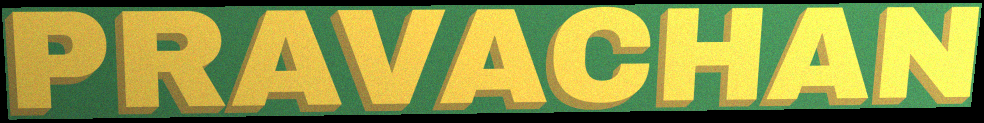
PRAVACHAN